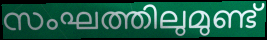
സംഘത്തിലുമുണ്ട്